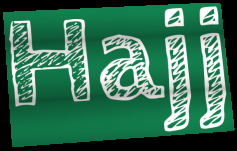
Hajj